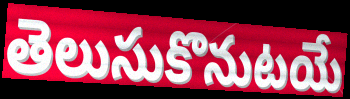
తెలుసుకొనుటయే